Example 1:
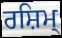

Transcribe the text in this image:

ਰਸ਼ਿਮ੍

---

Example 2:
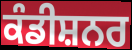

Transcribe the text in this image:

ਕੰਡੀਸ਼ਨਰ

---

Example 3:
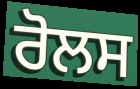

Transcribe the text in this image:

ਰੋਲਸ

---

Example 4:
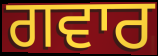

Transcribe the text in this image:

ਗਵਾਰ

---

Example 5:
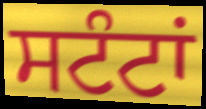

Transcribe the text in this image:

ਸਟੰਟਾਂ